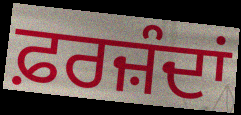
ਫ਼ਰਜ਼ੰਦਾਂ